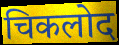
चिकलोद